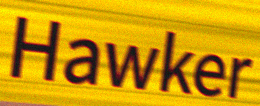
Hawker